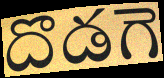
దొడగె